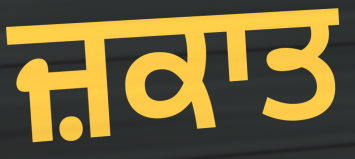
ਜ਼ਕਾਤ